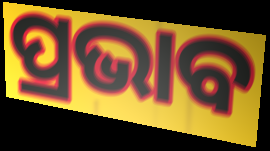
ପ୍ରଭାବ